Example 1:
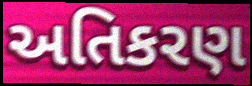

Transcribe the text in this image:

અતિકરણ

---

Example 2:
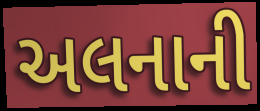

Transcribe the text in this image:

અલનાની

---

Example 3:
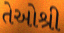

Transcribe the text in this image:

તેઓશ્રી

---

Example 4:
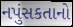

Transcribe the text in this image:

નપુંસકતાનો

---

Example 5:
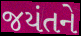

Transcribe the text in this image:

જયંતને